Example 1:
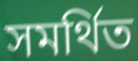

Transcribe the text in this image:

সমর্থিত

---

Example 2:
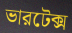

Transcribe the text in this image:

ভারটেক্স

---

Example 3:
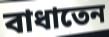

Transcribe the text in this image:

বাধাতেন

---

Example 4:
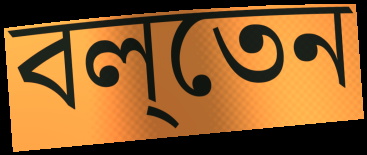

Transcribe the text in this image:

বল্‌তেন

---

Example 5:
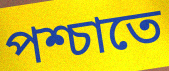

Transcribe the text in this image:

পশ্চাতে